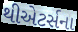
થીએટર્સના